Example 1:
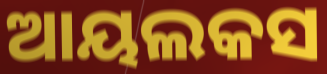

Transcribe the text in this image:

ଆୟଲକସ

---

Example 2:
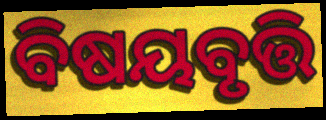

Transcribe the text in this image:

ବିଷୟବୃତ୍ତି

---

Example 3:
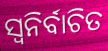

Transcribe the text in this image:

ସ୍ବନିର୍ବାଚିତ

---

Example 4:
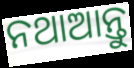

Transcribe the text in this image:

ନଥାଆନ୍ତୁ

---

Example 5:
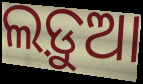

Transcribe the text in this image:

ଲଡ଼ୁଆ